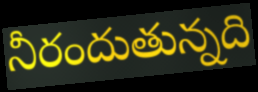
నీరందుతున్నది